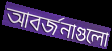
আবর্জনাগুলো